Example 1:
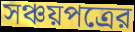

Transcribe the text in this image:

সঞ্চয়পত্রের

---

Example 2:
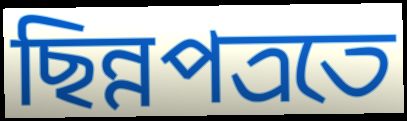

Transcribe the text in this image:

ছিন্নপত্রতে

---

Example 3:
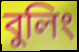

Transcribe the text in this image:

বুলিং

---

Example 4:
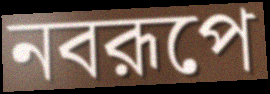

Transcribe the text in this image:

নবরূপে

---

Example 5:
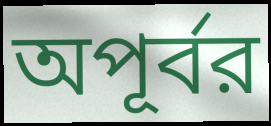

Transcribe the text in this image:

অপূর্বর